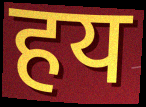
हय